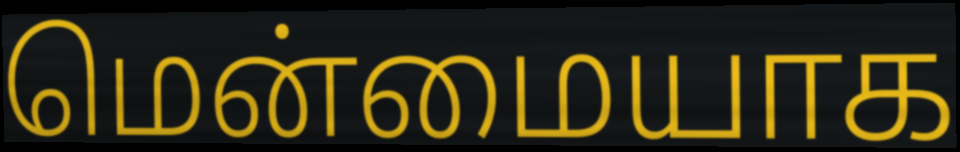
மென்மையாக